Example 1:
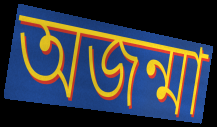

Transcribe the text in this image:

অজন্মা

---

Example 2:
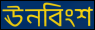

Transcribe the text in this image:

ঊনবিংশ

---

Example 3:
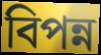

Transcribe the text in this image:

বিপন্ন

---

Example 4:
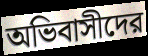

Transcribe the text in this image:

অভিবাসীদের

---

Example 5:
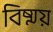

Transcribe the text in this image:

বিষ্ময়